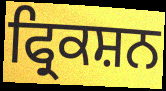
ਫ੍ਰਿਕਸ਼ਨ